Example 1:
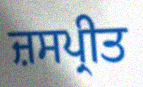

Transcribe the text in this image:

ਜ਼ਸਪ੍ਰੀਤ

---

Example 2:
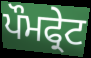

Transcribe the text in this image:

ਪੌਮਫ੍ਰੇਟ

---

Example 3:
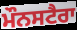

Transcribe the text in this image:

ਮੌਨਸਟੈਰਾ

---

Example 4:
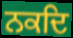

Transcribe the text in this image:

ਨਕਦਿ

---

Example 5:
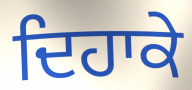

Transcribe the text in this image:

ਦਿਹਾਕੇ